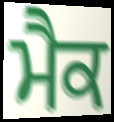
ਮੈਕ